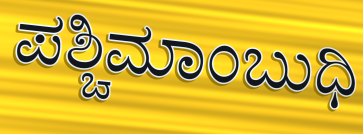
ಪಶ್ಚಿಮಾಂಬುಧಿ